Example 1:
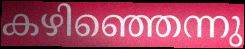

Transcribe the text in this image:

കഴിഞ്ഞെന്നു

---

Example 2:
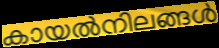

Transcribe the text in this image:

കായൽനിലങ്ങൾ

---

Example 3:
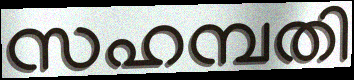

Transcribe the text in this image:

സഹമ്പതി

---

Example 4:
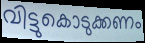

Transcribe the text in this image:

വിട്ടുകൊടുക്കണം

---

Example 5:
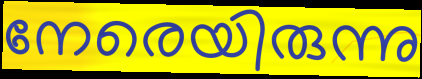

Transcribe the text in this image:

നേരെയിരുന്നു